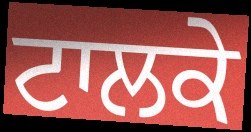
ਟਾਲਕੇ